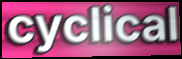
cyclical